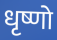
धृष्णो